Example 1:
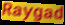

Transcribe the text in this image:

Raygad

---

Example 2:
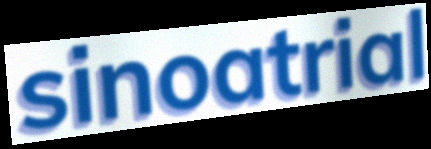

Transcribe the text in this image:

sinoatrial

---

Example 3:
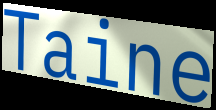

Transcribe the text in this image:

Taine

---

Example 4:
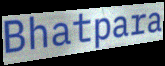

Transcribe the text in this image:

Bhatpara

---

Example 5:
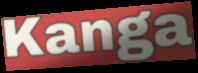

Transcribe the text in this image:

Kanga